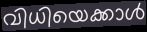
വിധിയെക്കാൾ